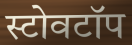
स्टोवटॉप